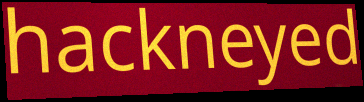
hackneyed